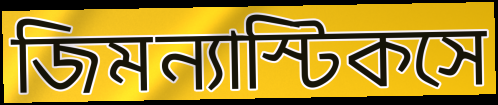
জিমন্যাস্টিকসে